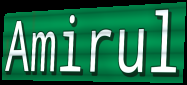
Amirul